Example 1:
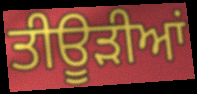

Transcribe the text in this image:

ਤੀਊੜੀਆਂ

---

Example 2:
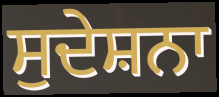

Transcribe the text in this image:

ਸੁਦੇਸ਼ਨਾ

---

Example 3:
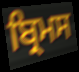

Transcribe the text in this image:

ਬ੍ਰਿਮਸ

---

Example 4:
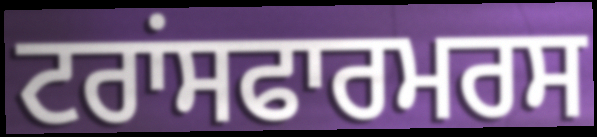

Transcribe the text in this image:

ਟਰਾਂਸਫਾਰਮਰਸ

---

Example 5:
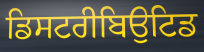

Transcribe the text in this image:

ਡਿਸਟਰੀਬਿਉਟਿਡ